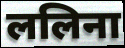
ललिना